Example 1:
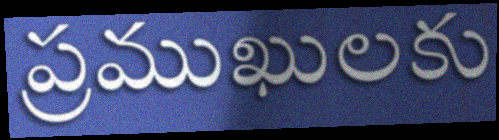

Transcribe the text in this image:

ప్రముఖులకు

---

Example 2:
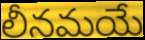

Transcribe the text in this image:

లీనమయే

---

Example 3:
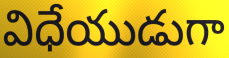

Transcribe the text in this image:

విధేయుడుగా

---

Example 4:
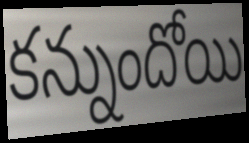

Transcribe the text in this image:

కన్నుందోయి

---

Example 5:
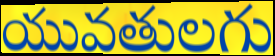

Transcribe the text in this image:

యువతులగు